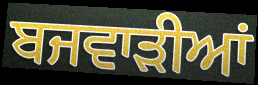
ਬਜਵਾੜੀਆਂ